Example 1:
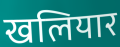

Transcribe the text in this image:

खलियार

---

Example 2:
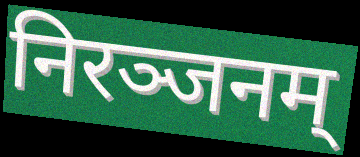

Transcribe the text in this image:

निरञ्जनम्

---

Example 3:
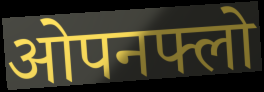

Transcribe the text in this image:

ओपनफ्लो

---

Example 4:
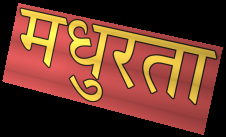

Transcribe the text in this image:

मधुरता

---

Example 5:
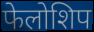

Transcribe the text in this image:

फेलोशिप